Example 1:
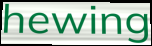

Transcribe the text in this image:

hewing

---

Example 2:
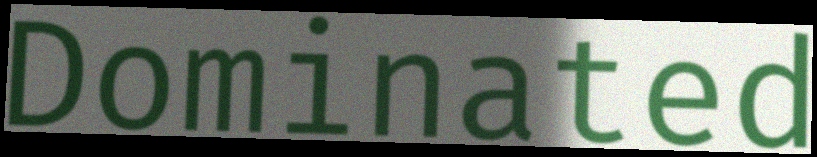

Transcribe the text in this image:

Dominated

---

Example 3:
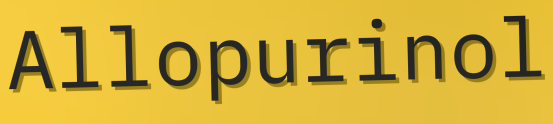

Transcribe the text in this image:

Allopurinol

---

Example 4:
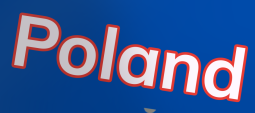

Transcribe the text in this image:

Poland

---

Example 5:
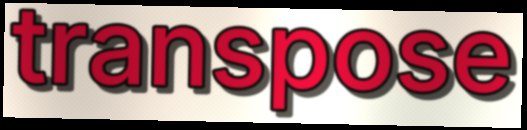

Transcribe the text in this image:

transpose